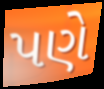
પણે